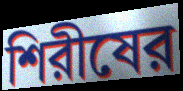
শিরীষের